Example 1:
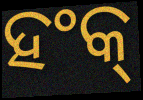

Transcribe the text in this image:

ହଂକ୍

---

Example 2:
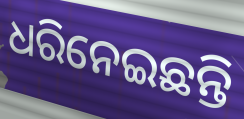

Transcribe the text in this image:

ଧରିନେଇଛନ୍ତି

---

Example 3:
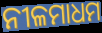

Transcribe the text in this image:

ନୀଳମାଧମ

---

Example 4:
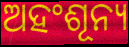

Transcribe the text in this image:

ଅହଂଶୂନ୍ୟ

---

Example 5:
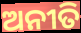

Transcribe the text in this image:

ଅନୀତି